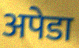
अपेडा